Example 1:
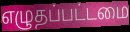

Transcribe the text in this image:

எழுதப்பட்டமை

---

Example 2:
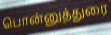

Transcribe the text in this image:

பொன்னுத்துரை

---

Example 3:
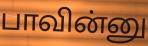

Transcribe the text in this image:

பாவின்னு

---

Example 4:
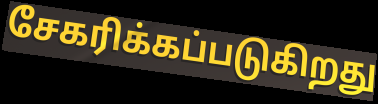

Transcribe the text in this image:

சேகரிக்கப்படுகிறது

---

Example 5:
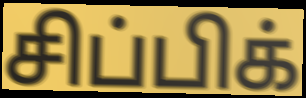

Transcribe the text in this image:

சிப்பிக்